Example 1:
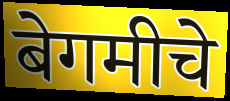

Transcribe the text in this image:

बेगमीचे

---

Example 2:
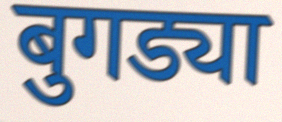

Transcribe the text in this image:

बुगड्या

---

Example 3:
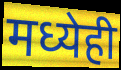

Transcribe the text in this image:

मध्येही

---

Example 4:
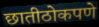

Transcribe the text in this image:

छातीठोकपणे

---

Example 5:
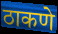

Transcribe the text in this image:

ठाकणे